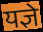
यज्ञे